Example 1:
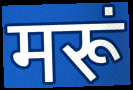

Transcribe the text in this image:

मरूं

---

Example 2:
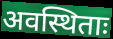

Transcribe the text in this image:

अवस्थिताः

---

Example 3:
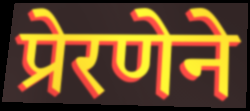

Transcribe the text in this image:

प्रेरणेने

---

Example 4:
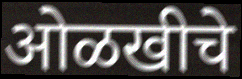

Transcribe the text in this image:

ओळखीचे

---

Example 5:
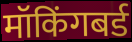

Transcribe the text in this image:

मॉकिंगबर्ड